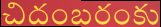
చిదంబరంకు